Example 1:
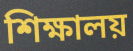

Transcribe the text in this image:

শিক্ষালয়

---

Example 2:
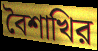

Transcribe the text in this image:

বৈশাখির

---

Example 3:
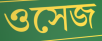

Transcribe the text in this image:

ওসেজ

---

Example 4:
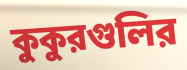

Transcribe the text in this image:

কুকুরগুলির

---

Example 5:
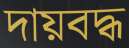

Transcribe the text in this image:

দায়বদ্ধ